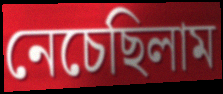
নেচেছিলাম